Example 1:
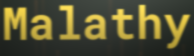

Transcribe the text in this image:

Malathy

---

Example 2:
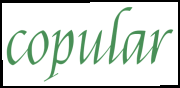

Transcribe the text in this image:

copular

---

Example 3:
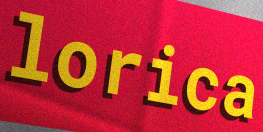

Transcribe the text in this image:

lorica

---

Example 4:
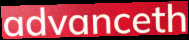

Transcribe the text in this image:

advanceth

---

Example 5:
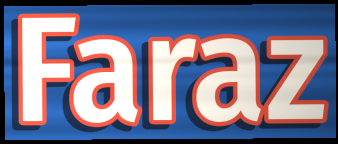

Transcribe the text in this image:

Faraz